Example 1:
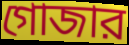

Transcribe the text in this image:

গোজার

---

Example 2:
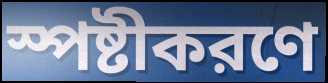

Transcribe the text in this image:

স্পষ্টীকরণে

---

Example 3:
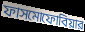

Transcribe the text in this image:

ফাসমোফোবিয়ার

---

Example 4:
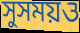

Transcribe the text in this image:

সুসময়ও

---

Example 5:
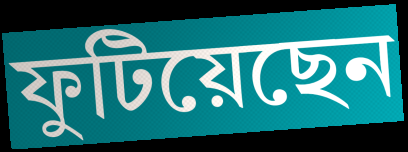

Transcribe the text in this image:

ফুটিয়েছেন